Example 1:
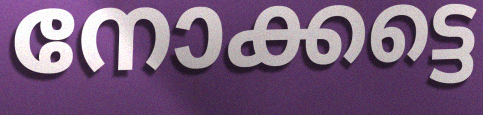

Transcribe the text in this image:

നോക്കട്ടെ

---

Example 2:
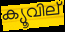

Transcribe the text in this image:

ക്യൂവില്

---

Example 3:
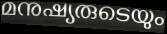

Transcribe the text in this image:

മനുഷ്യരുടെയും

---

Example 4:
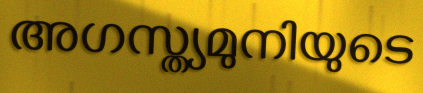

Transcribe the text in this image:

അഗസ്ത്യമുനിയുടെ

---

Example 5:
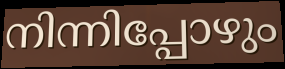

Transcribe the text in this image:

നിന്നിപ്പോഴും